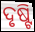
ଦୃଷ୍ଟି